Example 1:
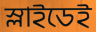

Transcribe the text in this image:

স্লাইডেই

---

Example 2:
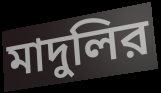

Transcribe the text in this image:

মাদুলির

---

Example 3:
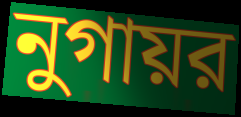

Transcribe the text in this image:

নুগায়র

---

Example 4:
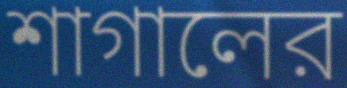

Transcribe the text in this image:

শাগালের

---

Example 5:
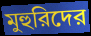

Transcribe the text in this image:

মুহুরিদের